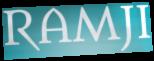
RAMJI